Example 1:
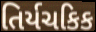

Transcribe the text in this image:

તિર્યચકિક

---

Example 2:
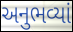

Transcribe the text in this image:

અનુભવ્યાં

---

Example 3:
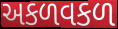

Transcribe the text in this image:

અકળવકળ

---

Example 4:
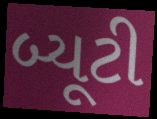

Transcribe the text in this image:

બ્યૂટી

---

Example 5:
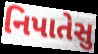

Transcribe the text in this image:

નિપાતેસુ